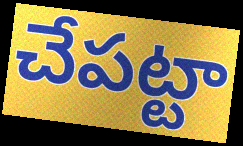
చేపట్టా